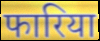
फारिया